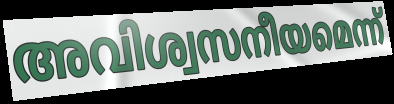
അവിശ്വസനീയമെന്ന്